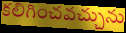
కలిగించవచ్చును